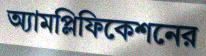
অ্যামপ্লিফিকেশনের